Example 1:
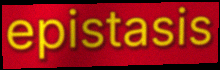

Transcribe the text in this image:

epistasis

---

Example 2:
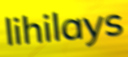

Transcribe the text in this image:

lihilays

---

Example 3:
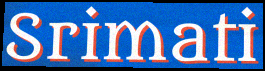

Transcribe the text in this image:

Srimati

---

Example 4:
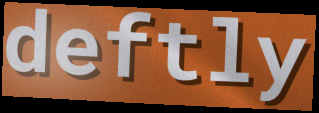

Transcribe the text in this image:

deftly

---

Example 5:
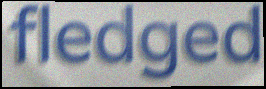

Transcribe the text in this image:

fledged